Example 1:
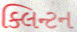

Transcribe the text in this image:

ક્લિન્ટન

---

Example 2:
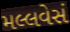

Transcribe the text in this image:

મલ્લવેસં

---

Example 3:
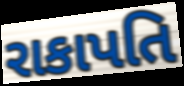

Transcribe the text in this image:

રાકાપતિ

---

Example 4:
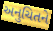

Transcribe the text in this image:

અનુચિતને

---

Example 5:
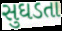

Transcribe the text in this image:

સુઘડતા